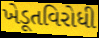
ખેડૂતવિરોધી